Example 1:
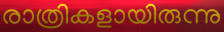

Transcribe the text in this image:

രാത്രികളായിരുന്നു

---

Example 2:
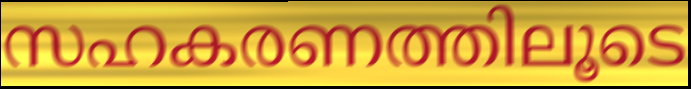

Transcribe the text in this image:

സഹകരണത്തിലൂടെ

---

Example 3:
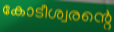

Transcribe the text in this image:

കോടീശ്വരന്റെ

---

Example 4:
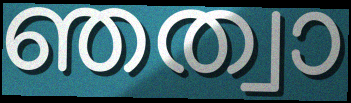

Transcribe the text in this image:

ഞത്വാ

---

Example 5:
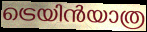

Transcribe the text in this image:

ട്രെയിൻയാത്ര